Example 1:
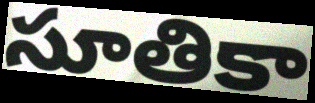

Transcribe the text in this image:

సూతికా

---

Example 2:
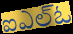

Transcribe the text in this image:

ఐఎల్ఓ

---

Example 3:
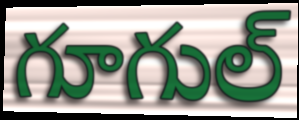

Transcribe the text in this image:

గూగుల్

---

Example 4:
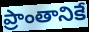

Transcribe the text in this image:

ప్రాంతానికే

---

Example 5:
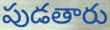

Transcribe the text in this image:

పుడతారు